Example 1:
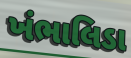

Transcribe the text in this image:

ખંભાલિડા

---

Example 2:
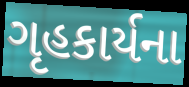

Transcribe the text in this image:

ગૃહકાર્યના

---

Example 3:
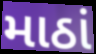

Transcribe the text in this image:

માઠાં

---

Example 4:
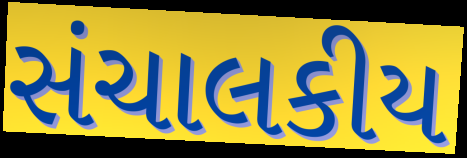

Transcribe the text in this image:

સંચાલકીય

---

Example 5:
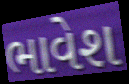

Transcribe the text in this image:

ભાવેશ